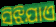
ସିଝିଯାଏ